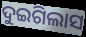
ଦୁଇଗିଲାସ